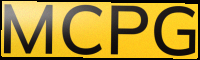
MCPG